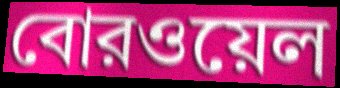
বোরওয়েল